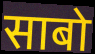
साबो